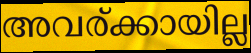
അവര്ക്കായില്ല